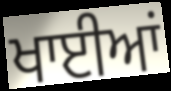
ਖਾਈਆਂ